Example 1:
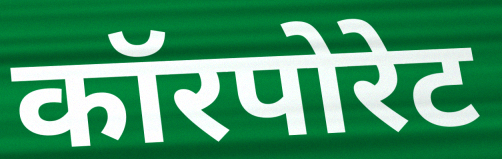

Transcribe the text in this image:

कॉरपोरेट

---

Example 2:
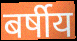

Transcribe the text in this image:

बर्षीय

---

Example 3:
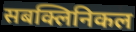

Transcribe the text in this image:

सबक्लिनिकल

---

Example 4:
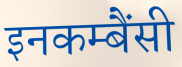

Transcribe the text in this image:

इनकम्बैंसी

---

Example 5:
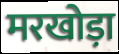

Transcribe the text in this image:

मरखोड़ा